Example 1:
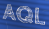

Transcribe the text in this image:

AQL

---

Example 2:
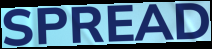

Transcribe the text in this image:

SPREAD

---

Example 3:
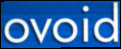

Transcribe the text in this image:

ovoid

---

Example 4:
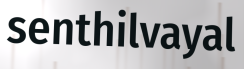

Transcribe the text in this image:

senthilvayal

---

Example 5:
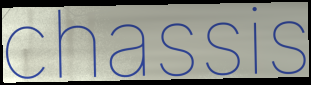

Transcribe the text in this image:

chassis